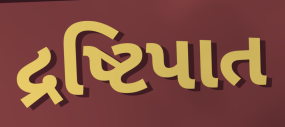
દ્રષ્ટિપાત